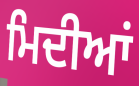
ਮਿਦੀਆਂ